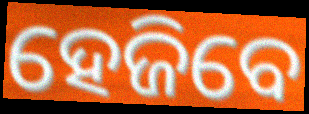
ହେଜିବେ